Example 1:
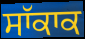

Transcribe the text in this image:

ਸਾੱਕਾਕ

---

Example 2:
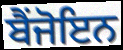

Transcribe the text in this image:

ਬੈਂਜੋਇਨ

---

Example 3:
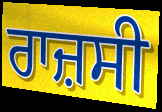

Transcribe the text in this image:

ਰਾਜ਼ਸੀ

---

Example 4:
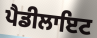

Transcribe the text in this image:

ਪੈਡੀਲਾਇਟ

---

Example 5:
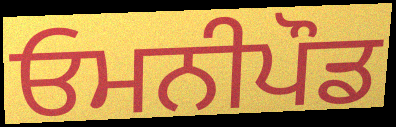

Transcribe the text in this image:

ਓਮਨੀਪੌਡ